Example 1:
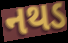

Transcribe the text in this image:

નથડ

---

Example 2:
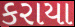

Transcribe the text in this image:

કરાયા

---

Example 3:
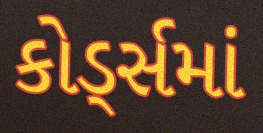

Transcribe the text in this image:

કોર્ડ્સમાં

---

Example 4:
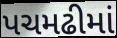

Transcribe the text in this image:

પચમઢીમાં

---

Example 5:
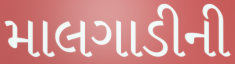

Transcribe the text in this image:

માલગાડીની